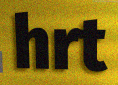
hrt